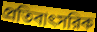
প্রতিবাৎসরিক